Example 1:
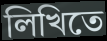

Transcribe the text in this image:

লিখিতে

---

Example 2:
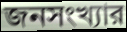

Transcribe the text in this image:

জনসংখ্যার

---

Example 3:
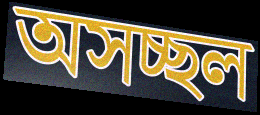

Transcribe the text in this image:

অসচ্ছল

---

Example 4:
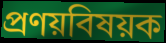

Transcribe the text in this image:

প্রণয়বিষয়ক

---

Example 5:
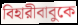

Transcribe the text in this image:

বিহারীবাবুকে